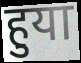
हुया